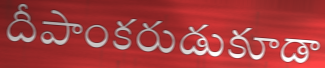
దీపాంకరుడుకూడా